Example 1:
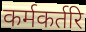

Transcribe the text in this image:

कर्मकर्तरि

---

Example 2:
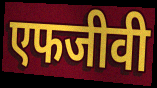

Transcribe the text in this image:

एफजीवी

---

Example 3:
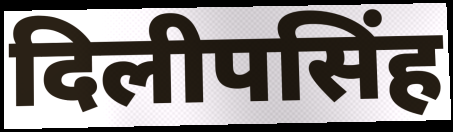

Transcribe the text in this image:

दिलीपसिंह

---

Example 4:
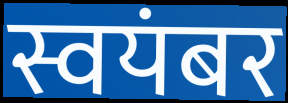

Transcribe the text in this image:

स्वयंबर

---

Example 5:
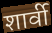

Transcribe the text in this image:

शार्वी